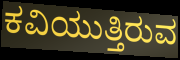
ಕವಿಯುತ್ತಿರುವ